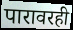
पारावरही